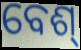
ବେଶ୍